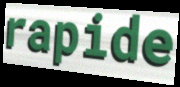
rapide